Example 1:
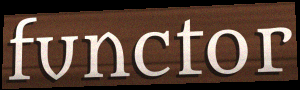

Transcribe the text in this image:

functor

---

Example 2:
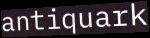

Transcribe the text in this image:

antiquark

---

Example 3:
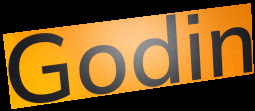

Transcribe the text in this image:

Godin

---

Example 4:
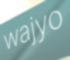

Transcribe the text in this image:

wajyo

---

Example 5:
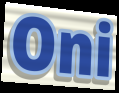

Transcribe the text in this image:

Oni